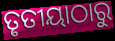
ତୃତୀୟାଠାରୁ